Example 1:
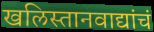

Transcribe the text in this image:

खलिस्तानवाद्यांचं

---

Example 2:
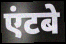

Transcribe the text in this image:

एंटबे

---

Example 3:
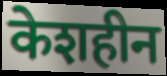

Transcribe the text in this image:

केशहीन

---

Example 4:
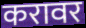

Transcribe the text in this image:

करावर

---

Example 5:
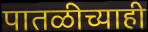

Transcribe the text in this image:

पातळीच्याही